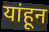
यांहून